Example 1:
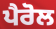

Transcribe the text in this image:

ਪੈਰੋਲ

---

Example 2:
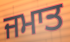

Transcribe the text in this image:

ਜਮਾਤ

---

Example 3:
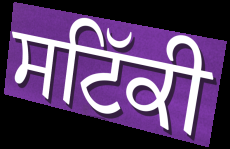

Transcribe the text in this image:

ਸਟਿੱਕੀ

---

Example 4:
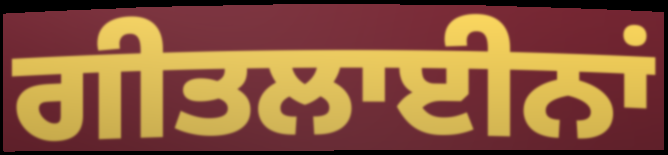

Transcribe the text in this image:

ਗੀਤਲਾਈਨਾਂ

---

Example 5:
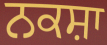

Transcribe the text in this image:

ਨਕਸ਼ਾ